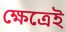
ক্ষেত্ৰেই